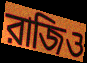
রাজিও